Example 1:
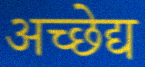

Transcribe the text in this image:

अच्छेद्य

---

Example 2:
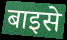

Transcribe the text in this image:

बाइसे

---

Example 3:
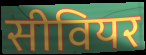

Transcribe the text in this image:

सीवियर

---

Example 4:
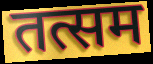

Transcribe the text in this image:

तत्सम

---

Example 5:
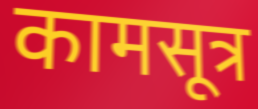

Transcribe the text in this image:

कामसूत्र